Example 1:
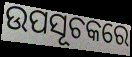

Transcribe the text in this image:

ଉପସୂଚକରେ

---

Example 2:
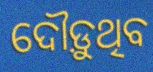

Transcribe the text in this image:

ଦୌଡ଼ୁଥିବ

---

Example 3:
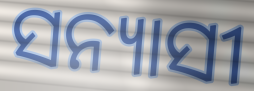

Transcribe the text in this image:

ସନ୍ଯାସୀ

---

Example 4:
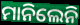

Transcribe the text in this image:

ମାନିଲେନି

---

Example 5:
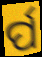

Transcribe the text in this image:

ର୍ପ